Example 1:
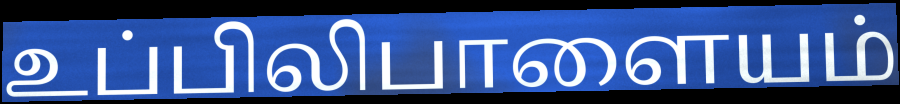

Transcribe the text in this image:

உப்பிலிபாளையம்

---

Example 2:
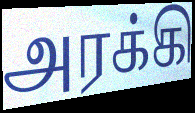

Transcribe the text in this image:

அரக்கி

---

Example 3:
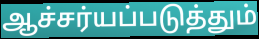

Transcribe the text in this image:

ஆச்சர்யப்படுத்தும்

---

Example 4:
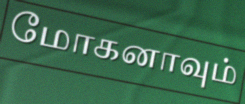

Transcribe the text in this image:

மோகனாவும்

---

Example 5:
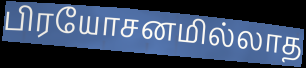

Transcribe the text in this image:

பிரயோசனமில்லாத